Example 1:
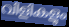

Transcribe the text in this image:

വിളികളും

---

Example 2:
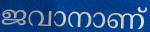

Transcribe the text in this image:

ജവാനാണ്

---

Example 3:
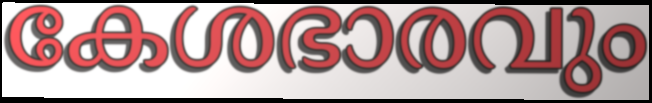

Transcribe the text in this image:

കേശഭാരവും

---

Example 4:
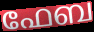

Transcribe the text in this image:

ഫേബ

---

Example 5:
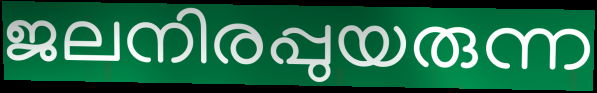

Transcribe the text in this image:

ജലനിരപ്പുയരുന്ന